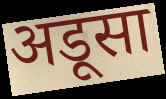
अडूसा